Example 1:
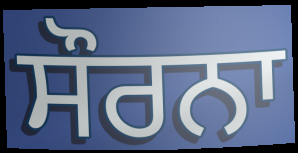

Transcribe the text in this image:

ਸੌਰਨਾ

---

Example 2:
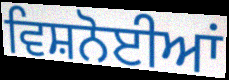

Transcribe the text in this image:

ਵਿਸ਼ਨੋਈਆਂ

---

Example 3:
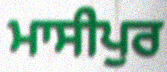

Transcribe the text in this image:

ਮਾਸੀਪੁਰ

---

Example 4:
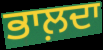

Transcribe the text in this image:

ਭਾਲ਼ਦਾ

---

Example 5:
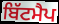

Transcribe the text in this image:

ਬਿੱਟਮੈਪ